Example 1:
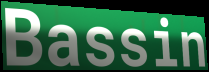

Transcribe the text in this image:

Bassin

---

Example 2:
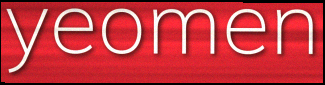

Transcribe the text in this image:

yeomen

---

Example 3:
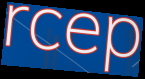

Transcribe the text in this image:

rcep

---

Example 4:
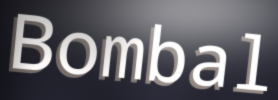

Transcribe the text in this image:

Bombal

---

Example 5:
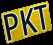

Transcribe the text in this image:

PKT